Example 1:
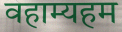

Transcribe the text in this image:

वहाम्यहम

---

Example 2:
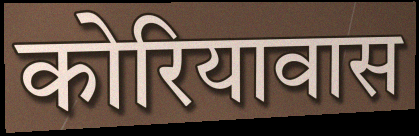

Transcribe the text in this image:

कोरियावास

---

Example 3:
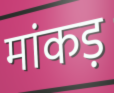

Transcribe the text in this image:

मांकड़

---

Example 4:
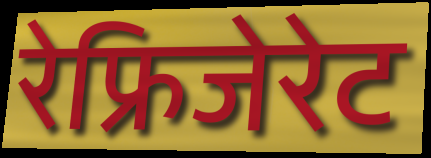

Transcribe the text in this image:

रेफ्रिजेरेट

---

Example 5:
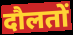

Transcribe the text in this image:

दौलतों